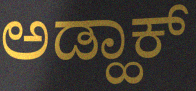
ಅಡ್ಹಾಕ್